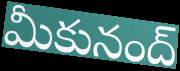
మీకునంద్